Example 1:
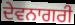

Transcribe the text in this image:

ਦੇਵਨਾਗਰੀ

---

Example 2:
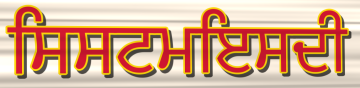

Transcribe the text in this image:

ਸਿਸਟਮਇਸਦੀ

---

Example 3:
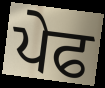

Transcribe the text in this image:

ਪੇਫ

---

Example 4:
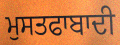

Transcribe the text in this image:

ਮੁਸਤਫਾਬਾਦੀ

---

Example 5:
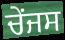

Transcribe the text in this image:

ਚੇਂਜਸ